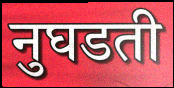
नुघडती